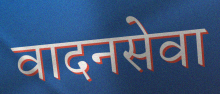
वादनसेवा